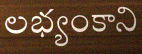
లభ్యంకాని